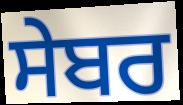
ਸੇਬਰ